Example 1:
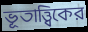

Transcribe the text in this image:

ভূতাত্ত্বিকের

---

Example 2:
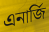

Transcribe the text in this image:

এনার্জি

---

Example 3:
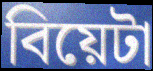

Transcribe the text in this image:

বিয়েটা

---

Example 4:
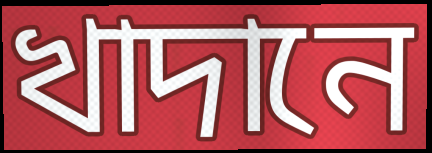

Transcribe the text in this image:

খাদানে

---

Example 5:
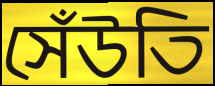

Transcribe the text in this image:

সেঁউতি